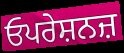
ਓਪਰੇਸ਼ਨਜ਼